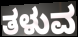
ತಳುವ